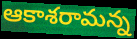
ఆకాశరామన్న